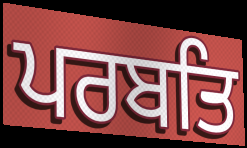
ਪਰਬਤਿ